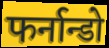
फर्नान्डो